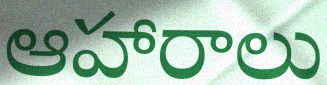
ఆహారాలు